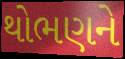
થોભણને